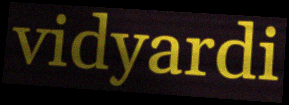
vidyardi